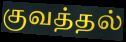
குவத்தல்